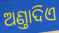
ଅଣ୍ତାଦିଏ